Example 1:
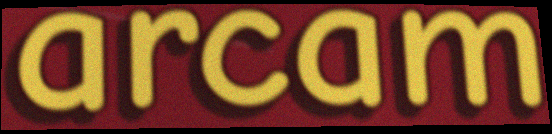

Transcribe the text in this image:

arcam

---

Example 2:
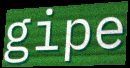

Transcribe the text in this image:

gipe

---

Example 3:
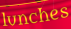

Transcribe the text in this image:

lunches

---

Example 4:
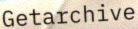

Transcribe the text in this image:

Getarchive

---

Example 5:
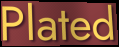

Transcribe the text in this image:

Plated